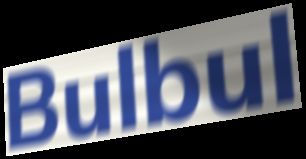
Bulbul